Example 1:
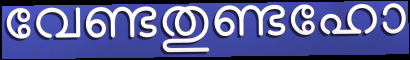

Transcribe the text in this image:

വേണ്ടതുണ്ടഹോ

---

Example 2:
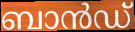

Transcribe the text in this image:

ബാൻഡ്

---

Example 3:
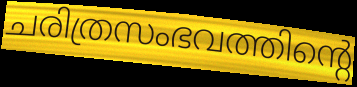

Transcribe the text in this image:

ചരിത്രസംഭവത്തിന്റെ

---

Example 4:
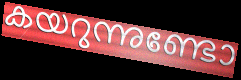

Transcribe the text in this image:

കയറുന്നുണ്ടോ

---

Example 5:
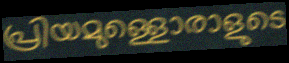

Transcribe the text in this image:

പ്രിയമുള്ളൊരാളുടെ